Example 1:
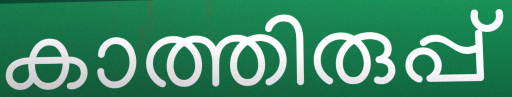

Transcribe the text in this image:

കാത്തിരുപ്പ്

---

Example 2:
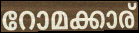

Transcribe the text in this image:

റോമക്കാര്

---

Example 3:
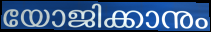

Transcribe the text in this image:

യോജിക്കാനും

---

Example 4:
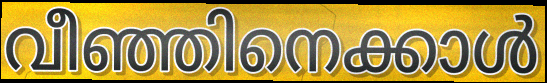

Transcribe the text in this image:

വീഞ്ഞിനെക്കാൾ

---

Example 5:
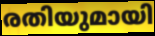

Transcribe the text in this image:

രതിയുമായി